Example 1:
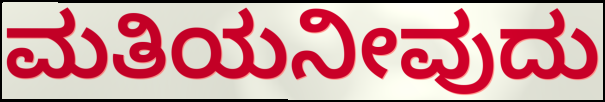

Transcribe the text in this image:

ಮತಿಯನೀವುದು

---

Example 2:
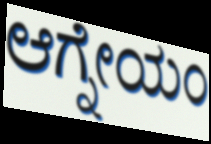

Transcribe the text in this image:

ಆಗ್ನೇಯಂ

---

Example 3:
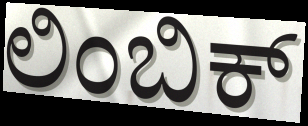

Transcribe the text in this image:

ಲಿಂಬಿಕ್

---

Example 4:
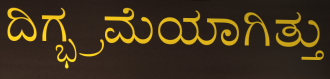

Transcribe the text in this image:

ದಿಗ್ಭ್ರಮೆಯಾಗಿತ್ತು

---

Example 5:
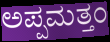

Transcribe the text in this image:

ಅಪ್ಪಮತ್ತಂ